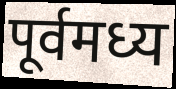
पूर्वमध्य